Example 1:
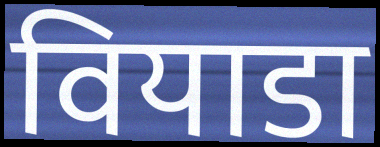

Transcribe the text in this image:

वियाडा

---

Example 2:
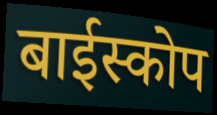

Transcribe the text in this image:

बाईस्कोप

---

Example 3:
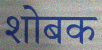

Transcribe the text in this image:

शोबक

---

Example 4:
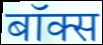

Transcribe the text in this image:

बॉक्स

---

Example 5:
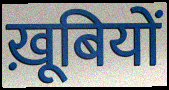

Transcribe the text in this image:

ख़ूबियों